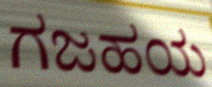
ಗಜಹಯ